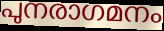
പുനരാഗമനം